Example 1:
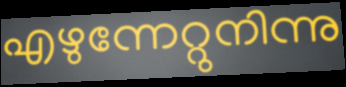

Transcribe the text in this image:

എഴുന്നേറ്റുനിന്നു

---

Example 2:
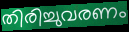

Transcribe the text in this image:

തിരിച്ചുവരണം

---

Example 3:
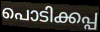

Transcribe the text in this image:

പൊടിക്കപ്പ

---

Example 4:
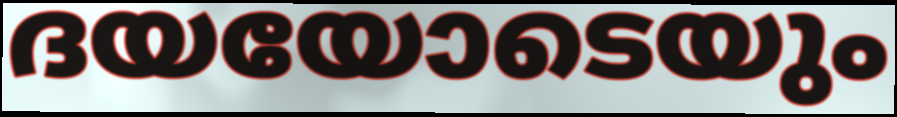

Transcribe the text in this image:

ദയയോടെയും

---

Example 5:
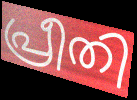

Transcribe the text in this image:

പ്രീതി